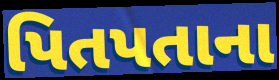
પિતપતાના